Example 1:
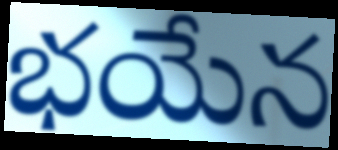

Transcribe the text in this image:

భయేన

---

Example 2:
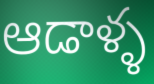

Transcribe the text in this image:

ఆడాళ్ళ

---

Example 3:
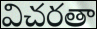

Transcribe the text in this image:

విచరతా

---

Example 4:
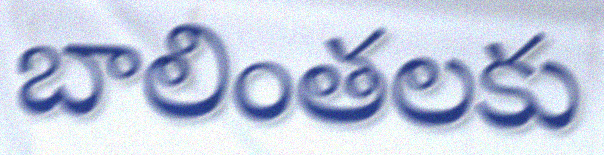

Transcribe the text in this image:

బాలింతలకు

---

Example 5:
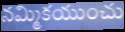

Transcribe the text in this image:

నమ్మికయుంచు